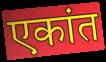
एकांत